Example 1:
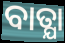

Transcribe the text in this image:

ବାତ୍ଯା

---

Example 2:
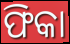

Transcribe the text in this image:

ଫିକା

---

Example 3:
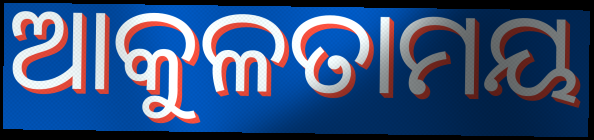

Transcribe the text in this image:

ଆକୁଳତାମୟ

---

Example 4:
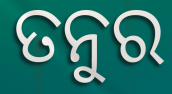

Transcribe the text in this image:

ତନୁର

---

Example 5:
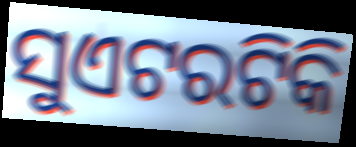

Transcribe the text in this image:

ସୁଏଟରଟିକି